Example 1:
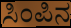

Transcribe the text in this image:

ಸಿಂಪಿನ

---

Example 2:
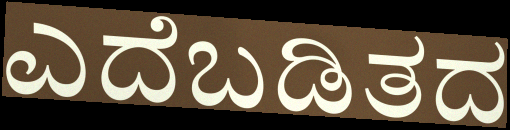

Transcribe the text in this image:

ಎದೆಬಡಿತದ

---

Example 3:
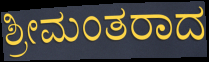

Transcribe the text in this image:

ಶ್ರೀಮಂತರಾದ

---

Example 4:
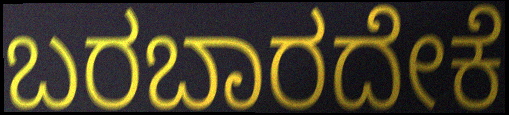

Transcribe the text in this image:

ಬರಬಾರದೇಕೆ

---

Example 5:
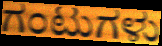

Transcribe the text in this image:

ಗಂಟುಗಳು